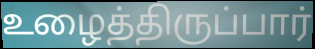
உழைத்திருப்பார்